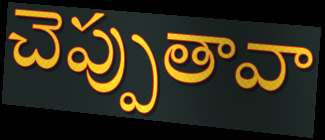
చెప్పుతావా